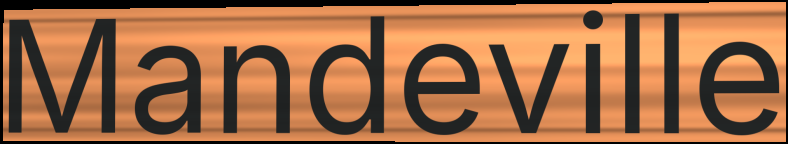
Mandeville